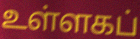
உள்ளகப்